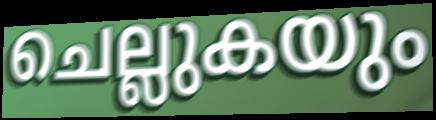
ചെല്ലുകയും